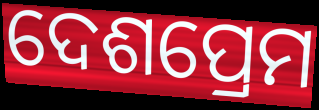
ଦେଶପ୍ରେମ